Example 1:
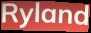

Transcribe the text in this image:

Ryland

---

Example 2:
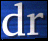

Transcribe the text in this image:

dr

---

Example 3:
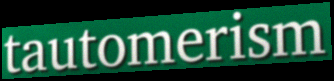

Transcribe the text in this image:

tautomerism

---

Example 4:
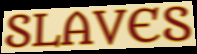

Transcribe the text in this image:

SLAVES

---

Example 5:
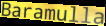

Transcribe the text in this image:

Baramulla